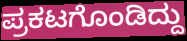
ಪ್ರಕಟಗೊಂಡಿದ್ದು